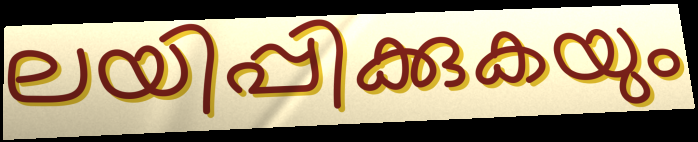
ലയിപ്പിക്കുകയും